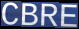
CBRE